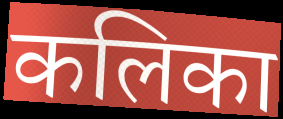
कलिका